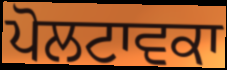
ਪੋਲਟਾਵਕਾ